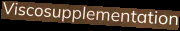
Viscosupplementation